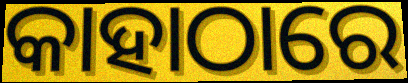
କାହାଠାରେ